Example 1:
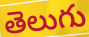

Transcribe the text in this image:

తెలుగు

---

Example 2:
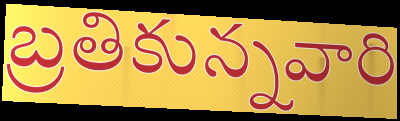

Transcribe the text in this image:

బ్రతికున్నవారి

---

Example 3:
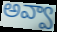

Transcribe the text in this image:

అవ్వా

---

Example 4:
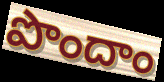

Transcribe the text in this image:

పొందాం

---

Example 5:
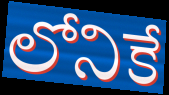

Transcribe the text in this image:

లోనికే